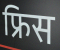
फ्रिस